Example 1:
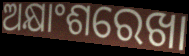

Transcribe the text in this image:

ଅକ୍ଷାଂଶରେଖା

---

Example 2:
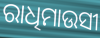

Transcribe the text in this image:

ରାଧିମାଉସୀ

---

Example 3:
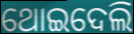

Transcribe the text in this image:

ଥୋଇଦେଲି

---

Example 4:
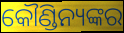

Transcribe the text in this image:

କୌଣ୍ଡିନ୍ୟଙ୍କର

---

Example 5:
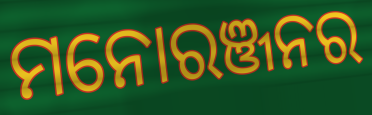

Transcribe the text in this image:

ମନୋରଞ୍ଜନର